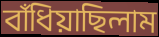
বাঁধিয়াছিলাম